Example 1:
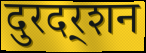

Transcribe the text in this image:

दुरदर्शन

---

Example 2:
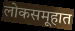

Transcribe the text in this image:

लोकसमूहात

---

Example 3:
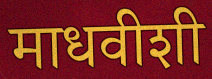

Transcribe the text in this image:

माधवीशी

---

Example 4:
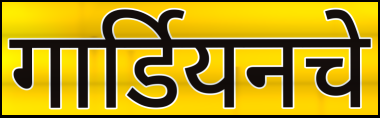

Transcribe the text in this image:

गार्डियनचे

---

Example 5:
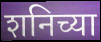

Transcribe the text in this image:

शनिच्या